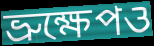
ভ্রুক্ষেপও